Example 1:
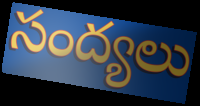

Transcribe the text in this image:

సంద్యలు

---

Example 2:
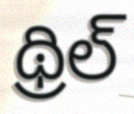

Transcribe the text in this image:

థ్రిల్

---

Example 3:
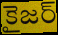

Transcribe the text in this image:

కైజర్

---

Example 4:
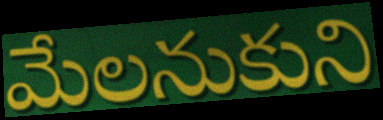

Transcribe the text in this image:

మేలనుకుని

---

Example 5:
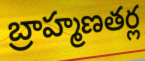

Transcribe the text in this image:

బ్రాహ్మణతర్ల